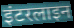
इंटरलाइन